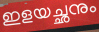
ഇളയച്ഛനും